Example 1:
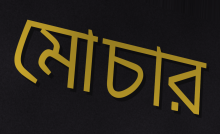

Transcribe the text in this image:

মোচার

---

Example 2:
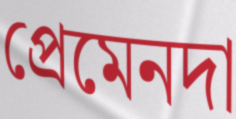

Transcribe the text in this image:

প্রেমেনদা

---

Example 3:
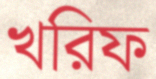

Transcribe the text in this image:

খরিফ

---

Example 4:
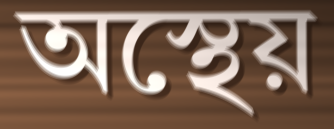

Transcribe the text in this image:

অস্থেয়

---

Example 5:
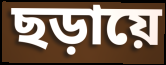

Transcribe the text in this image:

ছড়ায়ে